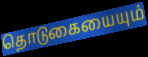
தொடுகையையும்